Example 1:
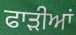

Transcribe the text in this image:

ਫਾੜੀਆਂ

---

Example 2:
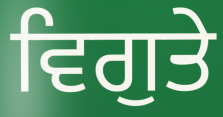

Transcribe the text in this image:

ਵਿਗੁਤੇ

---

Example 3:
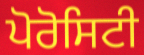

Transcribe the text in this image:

ਪੋਰੋਸਿਟੀ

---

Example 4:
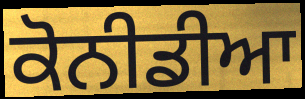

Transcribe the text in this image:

ਕੋਨੀਡੀਆ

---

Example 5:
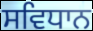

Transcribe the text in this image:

ਸਵਿਧਾਨ